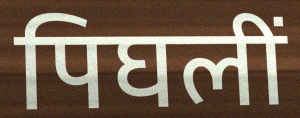
पिघलीं